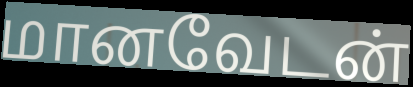
மானவேடன்